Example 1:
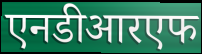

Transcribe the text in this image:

एनडीआरएफ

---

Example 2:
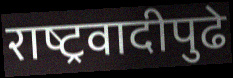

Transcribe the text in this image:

राष्ट्रवादीपुढे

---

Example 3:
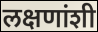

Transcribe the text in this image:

लक्षणांशी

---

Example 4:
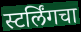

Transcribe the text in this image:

स्टर्लिंगचा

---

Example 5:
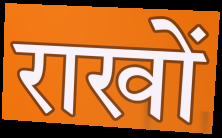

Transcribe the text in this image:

राखों